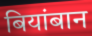
बियांबान